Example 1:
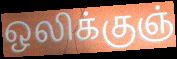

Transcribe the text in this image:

ஒலிக்குஞ்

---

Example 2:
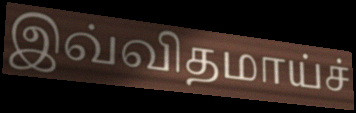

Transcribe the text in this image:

இவ்விதமாய்ச்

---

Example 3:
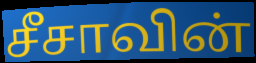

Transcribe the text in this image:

சீசாவின்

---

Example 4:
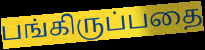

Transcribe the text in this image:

பங்கிருப்பதை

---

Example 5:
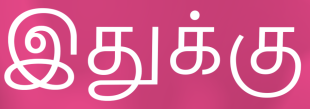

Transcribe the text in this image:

இதுக்கு